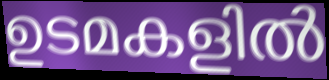
ഉടമകളിൽ